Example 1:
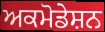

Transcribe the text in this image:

ਅਕਮੋਡੇਸ਼ਨ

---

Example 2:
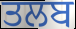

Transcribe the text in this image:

ਤਲਬ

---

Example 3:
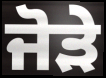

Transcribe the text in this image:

ਜੋੜੇ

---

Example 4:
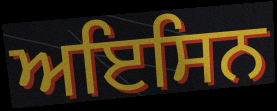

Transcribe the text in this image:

ਅਇਸਿਨ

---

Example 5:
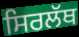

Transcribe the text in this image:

ਸਿਰਲੱਥ